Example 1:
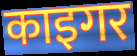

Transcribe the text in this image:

काइगर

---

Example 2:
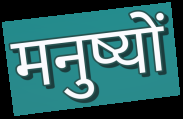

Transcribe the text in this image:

मनुष्यों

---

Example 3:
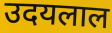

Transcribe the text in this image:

उदयलाल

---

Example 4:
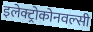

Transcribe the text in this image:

इलेक्ट्रोकोनवल्सी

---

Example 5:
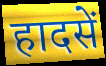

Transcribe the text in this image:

हादसें